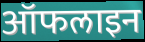
ऑफलाइन